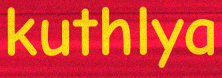
kuthlya